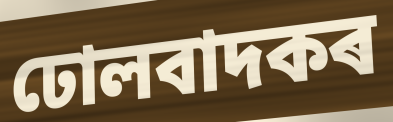
ঢোলবাদকৰ